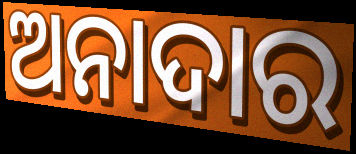
ଅନାଦାର